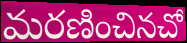
మరణించినచో